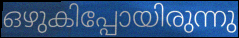
ഒഴുകിപ്പോയിരുന്നു